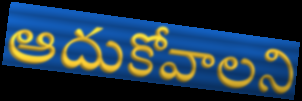
ఆదుకోవాలని